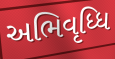
અભિવૃધ્ધિ